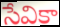
సేవికా